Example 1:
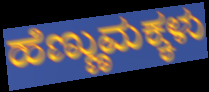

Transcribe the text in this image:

ಹೆಣ್ಣುಮಕ್ಕಳು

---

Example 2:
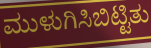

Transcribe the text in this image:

ಮುಳುಗಿಸಿಬಿಟ್ಟಿತು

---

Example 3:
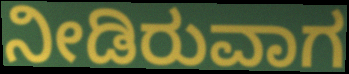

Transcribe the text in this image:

ನೀಡಿರುವಾಗ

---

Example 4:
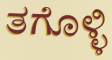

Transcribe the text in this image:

ತಗೊಳ್ಳಿ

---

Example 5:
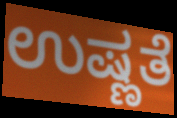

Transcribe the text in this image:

ಉಷ್ಣತೆ